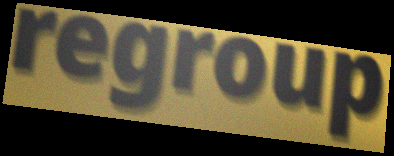
regroup